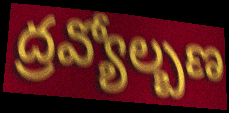
ద్రవ్యోల్బణ